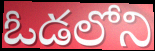
ఓడలోని